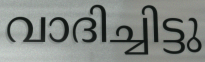
വാദിച്ചിട്ടു